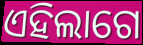
ଏହିଲାଗେ